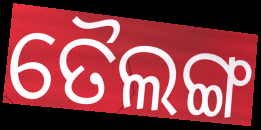
ତୈଲଙ୍ଗ